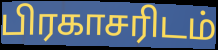
பிரகாசரிடம்